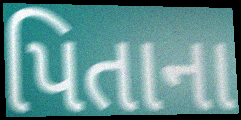
પિતાના